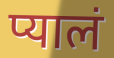
प्यालं